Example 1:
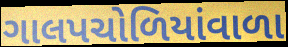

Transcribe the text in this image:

ગાલપચોળિયાંવાળા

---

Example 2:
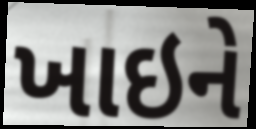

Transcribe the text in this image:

ખાઇને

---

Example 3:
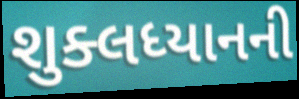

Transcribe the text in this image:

શુક્લધ્યાનની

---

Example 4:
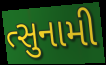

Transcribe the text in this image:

ત્સુનામી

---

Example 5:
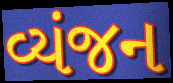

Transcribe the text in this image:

વ્યંજન